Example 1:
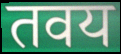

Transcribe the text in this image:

तवय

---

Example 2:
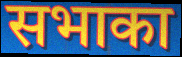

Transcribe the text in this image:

सभाका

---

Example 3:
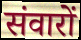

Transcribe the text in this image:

संवारों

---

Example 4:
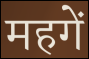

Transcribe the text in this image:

महगें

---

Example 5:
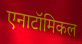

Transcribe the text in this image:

एनाटॉमिकल